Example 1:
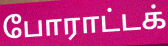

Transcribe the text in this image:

போராட்டக்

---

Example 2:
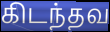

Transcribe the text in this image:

கிடந்தவ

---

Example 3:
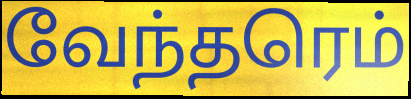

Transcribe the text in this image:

வேந்தரெம்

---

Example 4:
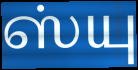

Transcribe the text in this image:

ஸ்யு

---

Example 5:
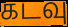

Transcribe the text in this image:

கடவு